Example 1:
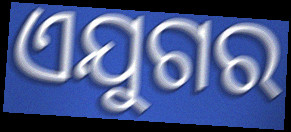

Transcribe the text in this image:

ଏଯୁଗର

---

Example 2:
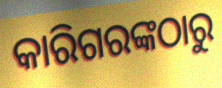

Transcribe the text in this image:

କାରିଗରଙ୍କଠାରୁ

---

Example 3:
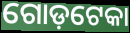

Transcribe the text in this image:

ଗୋଡ଼ଟେକା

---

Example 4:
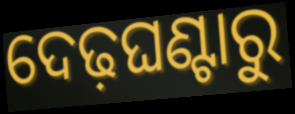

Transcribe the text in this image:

ଦେଢ଼ଘଣ୍ଟାରୁ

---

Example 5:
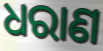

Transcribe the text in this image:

ଧରାଣ